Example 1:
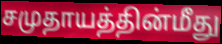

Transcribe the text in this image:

சமுதாயத்தின்மீது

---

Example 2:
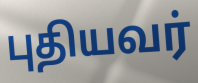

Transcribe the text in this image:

புதியவர்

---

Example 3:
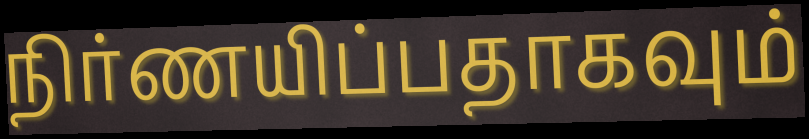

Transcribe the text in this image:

நிர்ணயிப்பதாகவும்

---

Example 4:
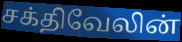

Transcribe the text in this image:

சக்திவேலின்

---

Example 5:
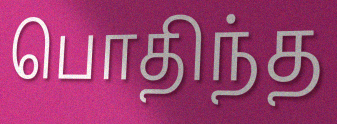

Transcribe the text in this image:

பொதிந்த